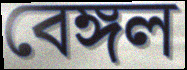
বেঙ্গল